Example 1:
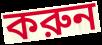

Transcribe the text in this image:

করুন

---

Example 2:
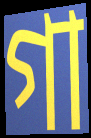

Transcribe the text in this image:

গা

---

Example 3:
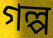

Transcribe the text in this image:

গল্প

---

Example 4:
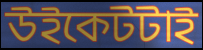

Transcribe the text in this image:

উইকেটটাই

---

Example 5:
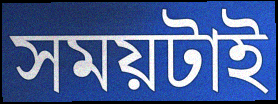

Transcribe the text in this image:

সময়টাই